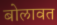
बोलावत